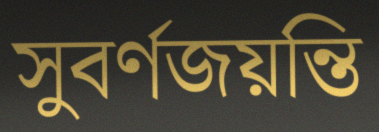
সুবর্ণজয়ন্তি